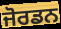
ਜੋਰਡਨ